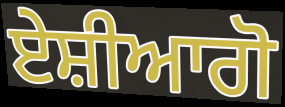
ਏਸ਼ੀਆਗੋ